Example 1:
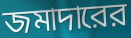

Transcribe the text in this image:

জমাদারের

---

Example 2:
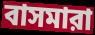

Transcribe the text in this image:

বাসমারা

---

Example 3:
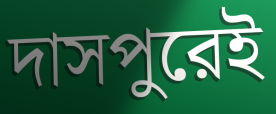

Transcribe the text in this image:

দাসপুরেই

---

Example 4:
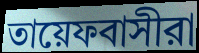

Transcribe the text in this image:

তায়েফবাসীরা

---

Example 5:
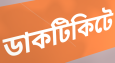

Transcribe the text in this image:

ডাকটিকিটে